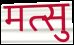
मत्सु